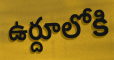
ఉర్దూలోకి